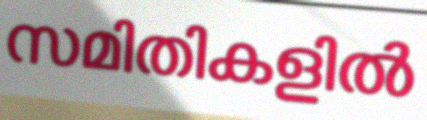
സമിതികളിൽ